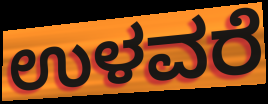
ಉಳವರೆ